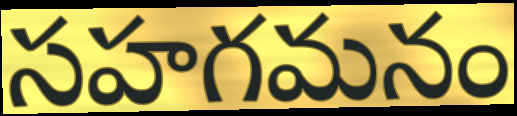
సహగమనం